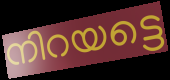
നിറയട്ടെ